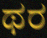
ಥರ